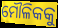
ମୌଳିକକୁ